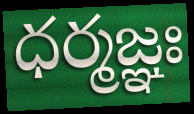
ధర్మజ్ఞః